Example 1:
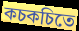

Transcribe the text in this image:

কচকচিতে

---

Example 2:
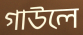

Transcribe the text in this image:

গাউলে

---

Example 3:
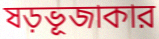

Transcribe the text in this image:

ষড়ভূজাকার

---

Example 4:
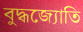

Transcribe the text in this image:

বুদ্ধজ্যোতি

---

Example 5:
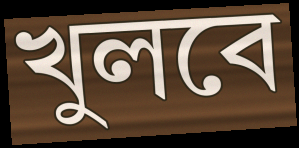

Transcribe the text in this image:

খুলবে